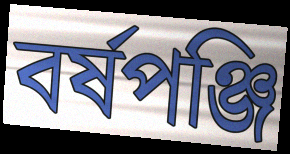
বর্ষপঞ্জি